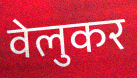
वेलुकर